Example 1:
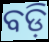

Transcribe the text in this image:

ବଡ଼ି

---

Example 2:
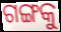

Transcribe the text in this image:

ଗଙ୍ଗକୁ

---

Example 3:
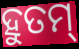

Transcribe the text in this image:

ହୁତମ୍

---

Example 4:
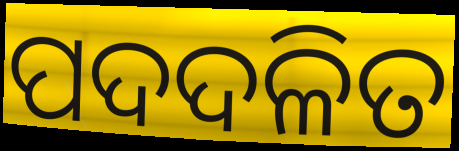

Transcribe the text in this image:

ପଦଦଳିତ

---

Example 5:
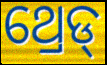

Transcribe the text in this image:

ଥ୍ରେଡ୍